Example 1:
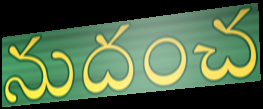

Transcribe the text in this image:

నుదంచ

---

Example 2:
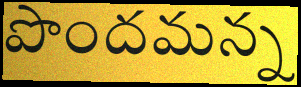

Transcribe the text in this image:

పొందమన్న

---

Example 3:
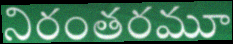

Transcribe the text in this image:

నిరంతరమూ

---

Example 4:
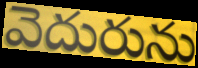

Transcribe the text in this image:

వెదురును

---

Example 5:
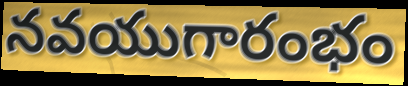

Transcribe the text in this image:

నవయుగారంభం